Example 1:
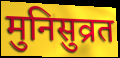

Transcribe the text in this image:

मुनिसुव्रत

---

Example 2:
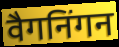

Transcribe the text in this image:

वैगनिंगन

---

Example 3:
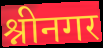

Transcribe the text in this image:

श्नीनगर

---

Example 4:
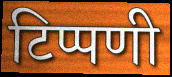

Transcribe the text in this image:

टिप्पणी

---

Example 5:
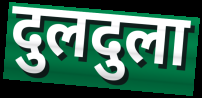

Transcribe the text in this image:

दुलदुला